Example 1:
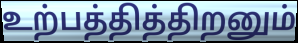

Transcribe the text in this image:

உற்பத்தித்திறனும்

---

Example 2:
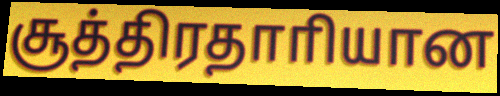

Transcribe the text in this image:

சூத்திரதாரியான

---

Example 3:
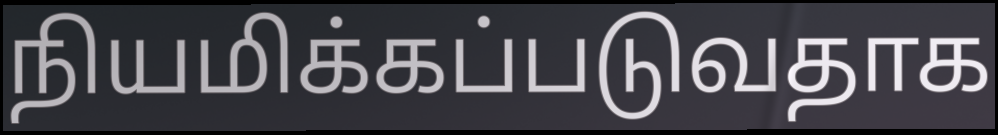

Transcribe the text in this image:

நியமிக்கப்படுவதாக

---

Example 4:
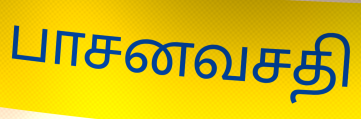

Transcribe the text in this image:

பாசனவசதி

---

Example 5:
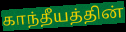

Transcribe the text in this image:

காந்தீயத்தின்